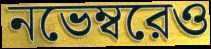
নভেম্বরেও